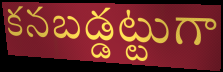
కనబడ్డట్టుగా